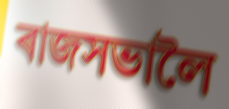
ৰাজসভালৈ